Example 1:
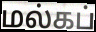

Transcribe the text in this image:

மல்கப்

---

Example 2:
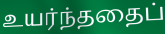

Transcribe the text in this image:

உயர்ந்ததைப்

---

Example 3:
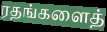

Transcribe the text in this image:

ரதங்களைத்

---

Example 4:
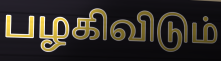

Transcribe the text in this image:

பழகிவிடும்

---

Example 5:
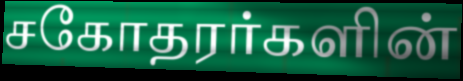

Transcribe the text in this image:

சகோதரர்களின்